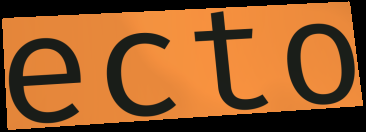
ecto